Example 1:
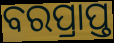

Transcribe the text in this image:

ବରପ୍ରାପ୍ତ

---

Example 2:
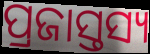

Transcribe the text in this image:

ପ୍ରଜାସ୍ତସ୍ୟ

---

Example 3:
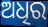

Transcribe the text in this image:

ଅଧିର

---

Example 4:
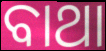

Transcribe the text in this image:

ବାଥା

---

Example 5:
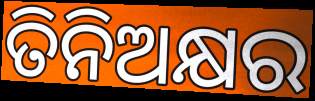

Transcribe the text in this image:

ତିନିଅକ୍ଷର